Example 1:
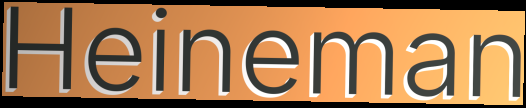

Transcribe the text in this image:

Heineman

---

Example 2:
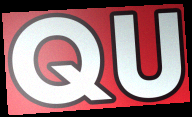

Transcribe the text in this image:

QU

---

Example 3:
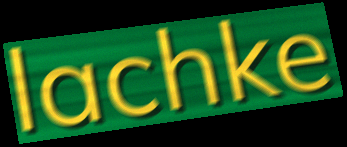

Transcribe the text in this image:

lachke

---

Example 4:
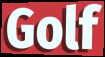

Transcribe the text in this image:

Golf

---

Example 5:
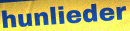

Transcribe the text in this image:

hunlieder